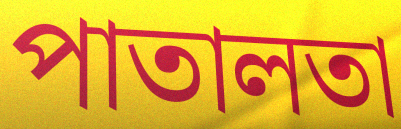
পাতালতা